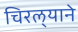
चिरल्याने